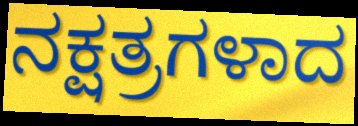
ನಕ್ಷತ್ರಗಳಾದ